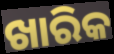
ଖାରିକ